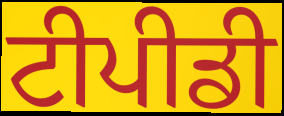
ਟੀਪੀਡੀ